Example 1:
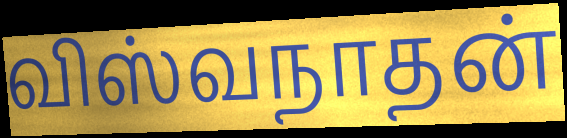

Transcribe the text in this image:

விஸ்வநாதன்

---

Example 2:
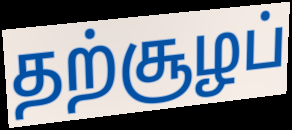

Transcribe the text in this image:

தற்சூழப்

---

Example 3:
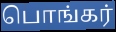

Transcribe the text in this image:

பொங்கர்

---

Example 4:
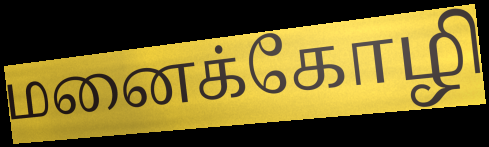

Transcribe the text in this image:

மனைக்கோழி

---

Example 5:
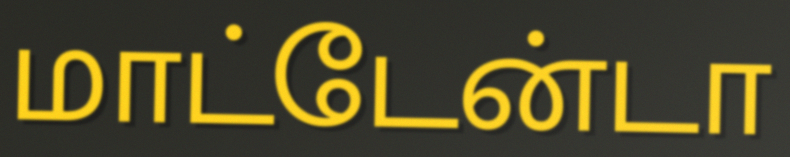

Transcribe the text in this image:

மாட்டேன்டா